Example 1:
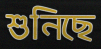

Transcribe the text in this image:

শুনিছে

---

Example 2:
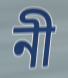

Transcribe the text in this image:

নী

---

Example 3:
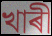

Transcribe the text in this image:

খাৰী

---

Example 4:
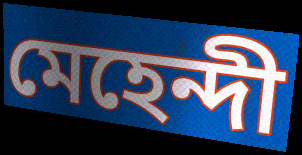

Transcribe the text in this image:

মেহেন্দী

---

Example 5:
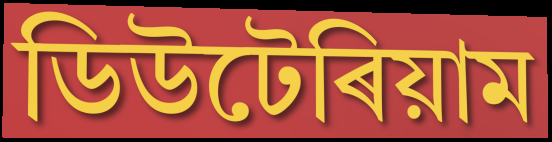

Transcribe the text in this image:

ডিউটেৰিয়াম